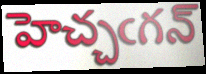
హెచ్చఁగన్